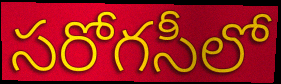
సరోగసీలో